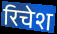
रिचेश